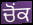
ਚੋਂਕ